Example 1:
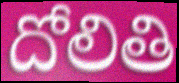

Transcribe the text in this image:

దోలితి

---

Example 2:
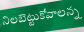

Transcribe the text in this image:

నిలబెట్టుకోవాలన్న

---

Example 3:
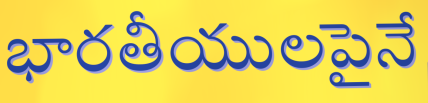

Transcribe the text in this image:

భారతీయులపైనే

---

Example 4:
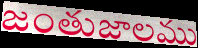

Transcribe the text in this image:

జంతుజాలము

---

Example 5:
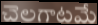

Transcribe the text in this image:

చెలగాటమే